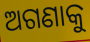
ଅଗଣାକୁ